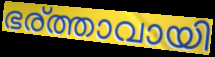
ഭര്ത്താവായി